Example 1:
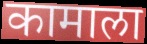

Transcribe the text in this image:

कामाला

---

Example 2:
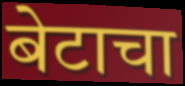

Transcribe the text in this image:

बेटाचा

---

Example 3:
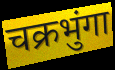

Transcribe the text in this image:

चक्रभुंगा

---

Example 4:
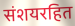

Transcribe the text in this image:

संशयरहित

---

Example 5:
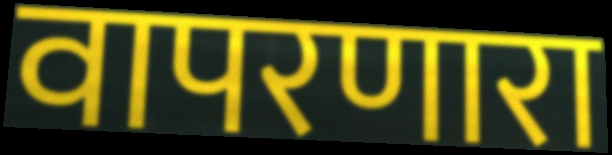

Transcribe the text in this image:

वापरणारा